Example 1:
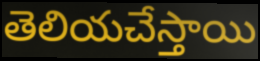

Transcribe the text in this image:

తెలియచేస్తాయి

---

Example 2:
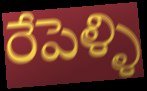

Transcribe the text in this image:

రేపెళ్ళి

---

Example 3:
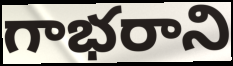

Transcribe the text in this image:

గాభరాని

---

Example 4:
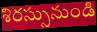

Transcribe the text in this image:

శిరస్సునుండి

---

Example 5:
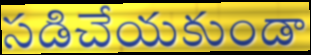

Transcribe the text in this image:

సడిచేయకుండా